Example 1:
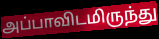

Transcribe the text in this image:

அப்பாவிடமிருந்து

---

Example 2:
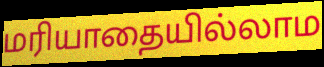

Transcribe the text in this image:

மரியாதையில்லாம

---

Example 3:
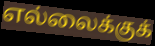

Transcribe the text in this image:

எல்லைக்குக்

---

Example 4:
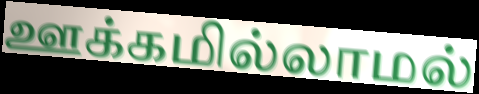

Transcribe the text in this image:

ஊக்கமில்லாமல்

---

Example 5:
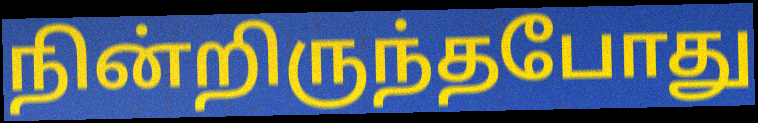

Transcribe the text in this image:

நின்றிருந்தபோது